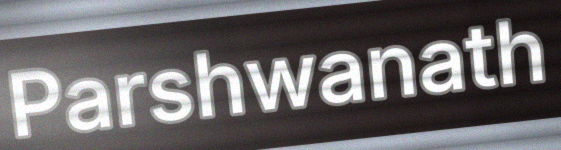
Parshwanath